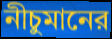
নীচুমানের